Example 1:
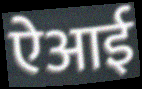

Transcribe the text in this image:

ऐआई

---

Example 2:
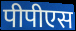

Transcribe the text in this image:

पीपीएस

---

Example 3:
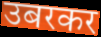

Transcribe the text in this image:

उबरकर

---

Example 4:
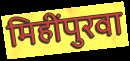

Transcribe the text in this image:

मिहींपुरवा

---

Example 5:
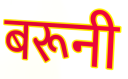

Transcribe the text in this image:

बरूनी